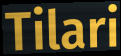
Tilari